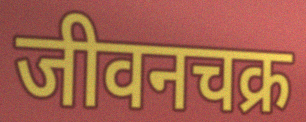
जीवनचक्र